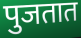
पुजतात